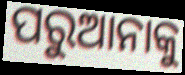
ପରୁଆନାକୁ